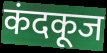
कंदकूज